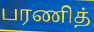
பரணித்